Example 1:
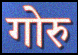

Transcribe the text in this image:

गोरु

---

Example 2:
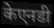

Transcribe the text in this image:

केएनडी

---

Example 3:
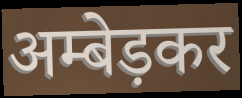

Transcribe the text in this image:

अम्बेड़कर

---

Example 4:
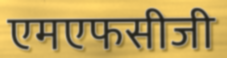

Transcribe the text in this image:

एमएफसीजी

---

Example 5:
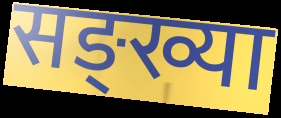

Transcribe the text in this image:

सङ्ख्या